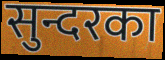
सुन्दरका